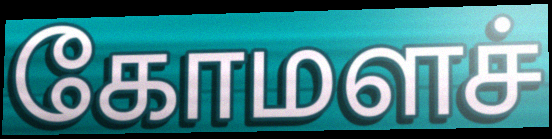
கோமளச்